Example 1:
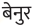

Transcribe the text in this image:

बेनुर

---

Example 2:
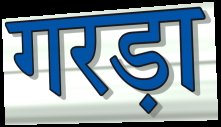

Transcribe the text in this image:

गरड़ा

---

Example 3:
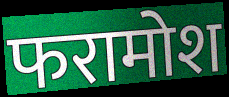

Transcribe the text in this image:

फरामोश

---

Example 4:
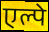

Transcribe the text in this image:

एल्पे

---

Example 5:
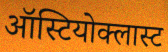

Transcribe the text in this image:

ऑस्टियोक्लास्ट